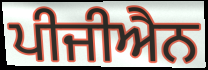
ਪੀਜੀਐਨ